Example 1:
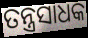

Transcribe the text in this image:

ତନ୍ତ୍ରସାଧକ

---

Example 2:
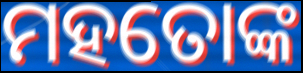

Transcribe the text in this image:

ମହତୋଙ୍କ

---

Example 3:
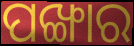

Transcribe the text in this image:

ପଙ୍ଖାର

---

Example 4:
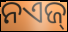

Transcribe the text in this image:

ନଏଜ୍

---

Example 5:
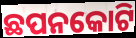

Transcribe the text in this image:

ଛପନକୋଟି